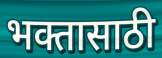
भक्तासाठी